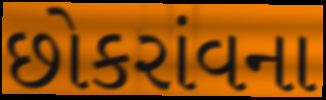
છોકરાંવના